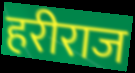
हरीराज